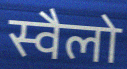
स्वैलो